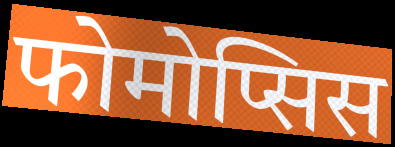
फोमोप्सिस